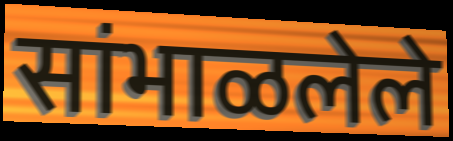
सांभाळलेले